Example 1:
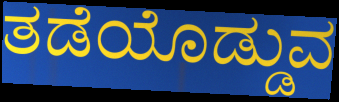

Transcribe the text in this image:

ತಡೆಯೊಡ್ಡುವ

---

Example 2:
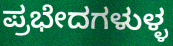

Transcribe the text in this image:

ಪ್ರಭೇದಗಳುಳ್ಳ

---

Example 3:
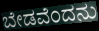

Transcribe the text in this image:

ಬೇಡವೆಂದನು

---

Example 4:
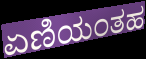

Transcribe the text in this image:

ಏಣಿಯಂತಹ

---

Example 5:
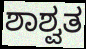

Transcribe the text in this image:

ಶಾಶ್ವತ